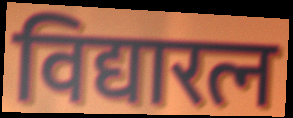
विद्यारत्न